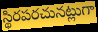
స్థిరపరచునట్లుగా